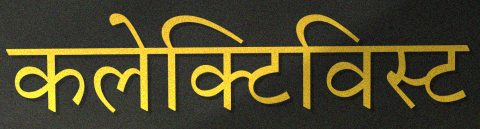
कलेक्टिविस्ट